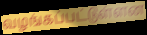
வழங்கப்பட்டுள்ளன